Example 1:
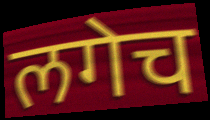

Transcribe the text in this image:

लगेच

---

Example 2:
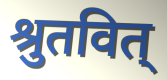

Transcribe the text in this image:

श्रुतवित्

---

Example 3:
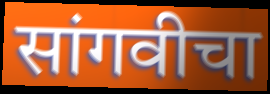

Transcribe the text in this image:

सांगवीचा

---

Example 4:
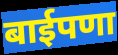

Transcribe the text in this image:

बाईपणा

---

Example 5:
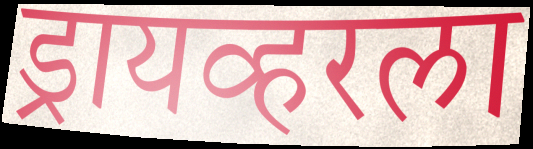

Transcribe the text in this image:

ड्रायव्हरला